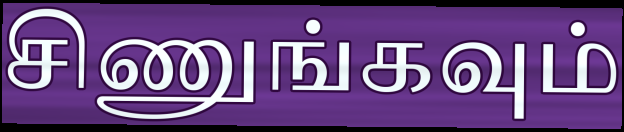
சிணுங்கவும்